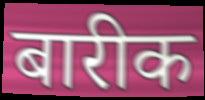
बारीक